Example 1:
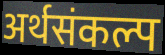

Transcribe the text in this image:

अर्थसंकल्प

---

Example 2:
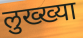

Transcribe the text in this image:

लुख्ख्या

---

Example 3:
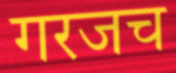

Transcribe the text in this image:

गरजच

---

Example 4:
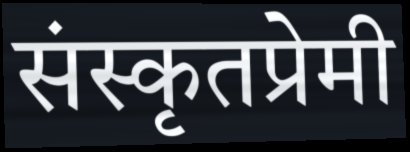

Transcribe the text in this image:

संस्कृतप्रेमी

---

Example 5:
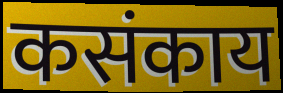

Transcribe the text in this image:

कसंकाय